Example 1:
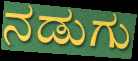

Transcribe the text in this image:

ನಡುಗು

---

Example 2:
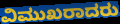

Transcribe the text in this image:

ವಿಮುಖರಾದರು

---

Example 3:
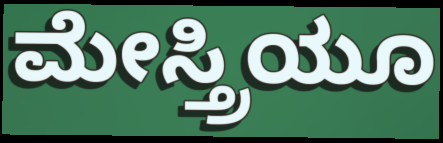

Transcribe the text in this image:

ಮೇಸ್ತ್ರಿಯೂ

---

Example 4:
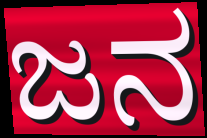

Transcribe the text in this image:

ಜನ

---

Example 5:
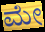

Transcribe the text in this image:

ಮೇ